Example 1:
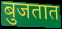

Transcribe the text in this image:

बुजतात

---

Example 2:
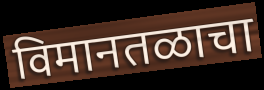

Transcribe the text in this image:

विमानतळाचा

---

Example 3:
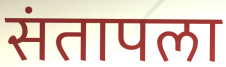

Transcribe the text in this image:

संतापला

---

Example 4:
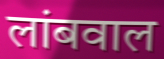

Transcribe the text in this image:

लांबवाल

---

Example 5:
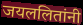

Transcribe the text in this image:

जयललितांनी